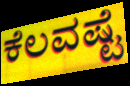
ಕೆಲವಷ್ಟೆ